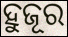
ହୁଜୂର